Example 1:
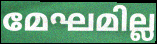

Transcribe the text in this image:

മേഘമില്ല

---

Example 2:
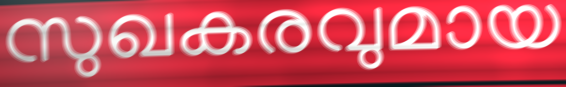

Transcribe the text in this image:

സുഖകരവുമായ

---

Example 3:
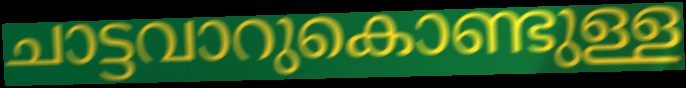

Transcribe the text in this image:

ചാട്ടവാറുകൊണ്ടുള്ള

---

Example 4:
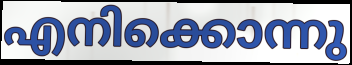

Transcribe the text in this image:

എനിക്കൊന്നു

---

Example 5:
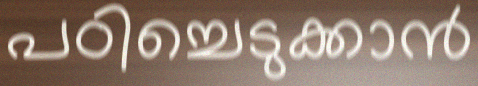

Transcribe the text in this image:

പഠിച്ചെടുക്കാൻ